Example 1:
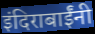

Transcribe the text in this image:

इंदिराबाईंनी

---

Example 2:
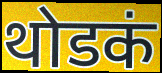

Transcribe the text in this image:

थोडकं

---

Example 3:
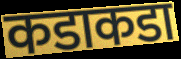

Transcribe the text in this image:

कडाकडा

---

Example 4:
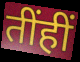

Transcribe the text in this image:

तींहीं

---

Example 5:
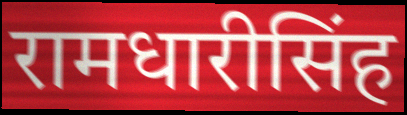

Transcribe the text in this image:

रामधारीसिंह